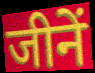
जीनें